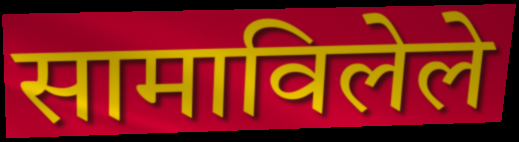
सामाविलेले